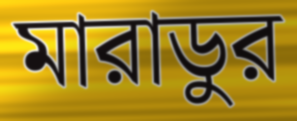
মারাডুর